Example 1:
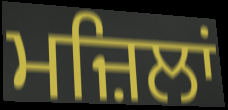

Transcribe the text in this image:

ਮਜ਼ਿਲਾਂ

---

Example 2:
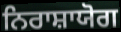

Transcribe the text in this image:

ਨਿਰਾਸ਼ਾਯੋਗ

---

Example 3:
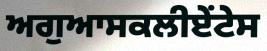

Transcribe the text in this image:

ਅਗੁਆਸਕਲੀਏਂਟੇਸ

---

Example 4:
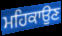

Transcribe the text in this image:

ਮਹਿਕਾਉਣ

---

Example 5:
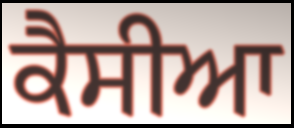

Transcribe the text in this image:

ਕੈਸੀਆ